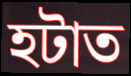
হটাত